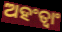
ଅହଂତ୍ୱାଂ